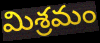
మిశ్రమం